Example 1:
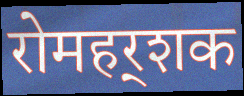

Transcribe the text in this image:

रोमहर्शक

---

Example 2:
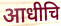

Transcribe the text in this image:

आधीचि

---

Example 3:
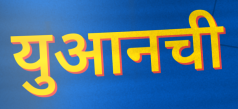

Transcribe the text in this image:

युआनची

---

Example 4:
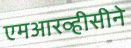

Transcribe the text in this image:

एमआरव्हीसीने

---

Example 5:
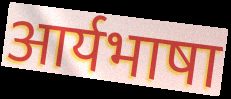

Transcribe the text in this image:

आर्यभाषा